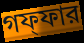
গফ্ফার